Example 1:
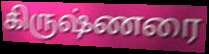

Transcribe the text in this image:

கிருஷ்ணரை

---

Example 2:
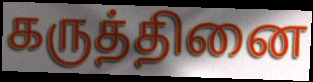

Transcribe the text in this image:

கருத்தினை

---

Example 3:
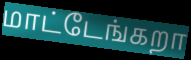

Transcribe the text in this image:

மாட்டேங்கறா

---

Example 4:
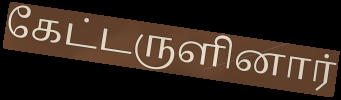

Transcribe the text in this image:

கேட்டருளினார்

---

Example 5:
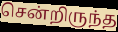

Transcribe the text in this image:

சென்றிருந்த